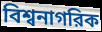
বিশ্বনাগরিক